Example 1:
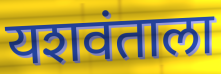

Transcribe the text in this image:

यशवंताला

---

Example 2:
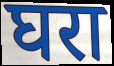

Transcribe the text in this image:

घरा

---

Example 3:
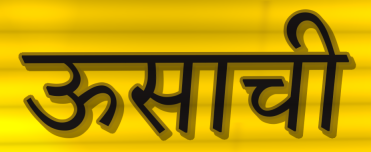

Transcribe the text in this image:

ऊसाची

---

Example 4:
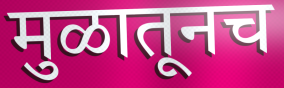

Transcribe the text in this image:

मुळातूनच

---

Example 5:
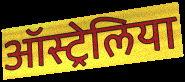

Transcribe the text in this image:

ऑस्ट्रेलिया